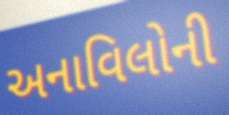
અનાવિલોની